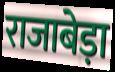
राजाबेड़ा